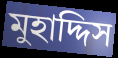
মুহাদ্দিস